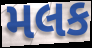
મલક